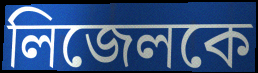
লিজেলকে